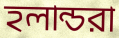
হলান্ডরা